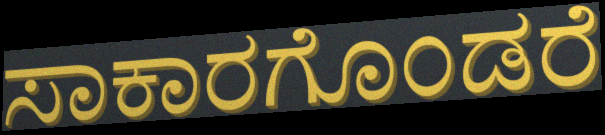
ಸಾಕಾರಗೊಂಡರೆ